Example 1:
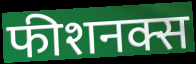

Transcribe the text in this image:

फीशनक्स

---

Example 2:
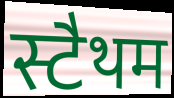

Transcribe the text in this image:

स्टैथम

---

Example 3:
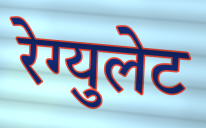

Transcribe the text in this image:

रेग्‍युलेट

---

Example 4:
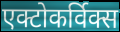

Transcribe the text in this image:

एक्टोकर्विक्स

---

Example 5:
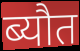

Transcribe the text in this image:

ब्यौत